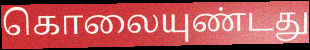
கொலையுண்டது